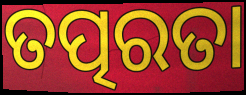
ତତ୍ପରତା